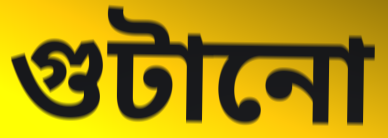
গুটানো